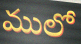
ములో